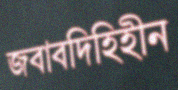
জবাবদিহিহীন